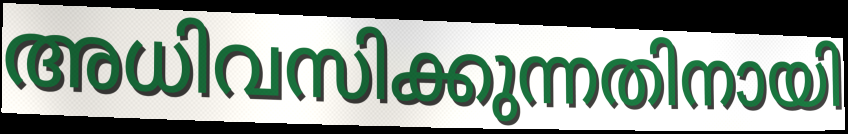
അധിവസിക്കുന്നതിനായി